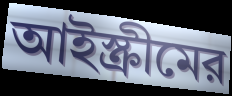
আইস্ক্রীমের